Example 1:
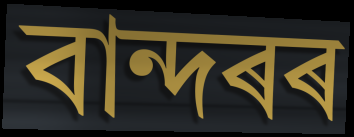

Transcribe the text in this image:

বান্দৰৰ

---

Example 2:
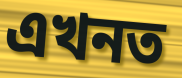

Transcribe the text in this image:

এখনত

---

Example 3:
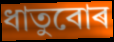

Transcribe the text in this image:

ধাতুবোৰ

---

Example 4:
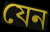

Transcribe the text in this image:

যেন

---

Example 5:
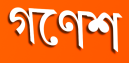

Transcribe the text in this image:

গণেশ